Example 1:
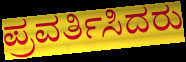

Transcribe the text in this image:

ಪ್ರವರ್ತಿಸಿದರು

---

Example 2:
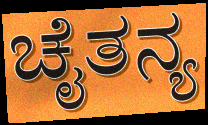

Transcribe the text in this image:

ಚೈತನ್ಯ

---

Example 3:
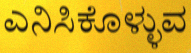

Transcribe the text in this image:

ಎನಿಸಿಕೊಳ್ಳುವ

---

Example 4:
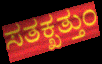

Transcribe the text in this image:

ಸತಕ್ಖತ್ತುಂ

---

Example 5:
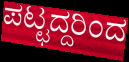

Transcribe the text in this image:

ಪಟ್ಟದ್ದರಿಂದ